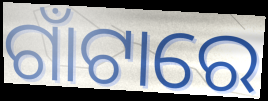
ଗାଁଟାରେ